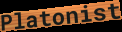
Platonist